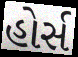
હોર્સ